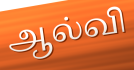
ஆல்வி